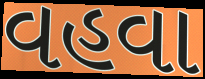
વહવા